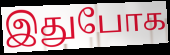
இதுபோக